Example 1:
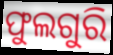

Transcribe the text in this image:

ଫୁଲଗୁରି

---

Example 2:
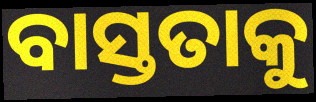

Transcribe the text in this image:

ବାସ୍ତତାକୁ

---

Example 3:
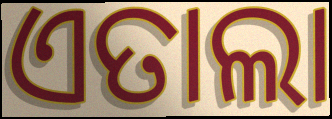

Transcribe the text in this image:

ଏତାଲା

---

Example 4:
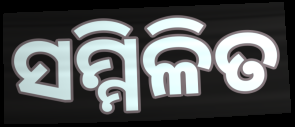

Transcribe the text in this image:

ସମ୍ମିଳିତ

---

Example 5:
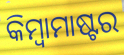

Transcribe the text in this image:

କିମ୍ୱାମାଷ୍ଟର